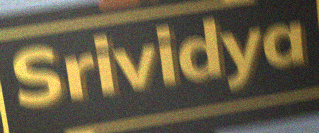
Srividya